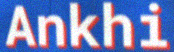
Ankhi